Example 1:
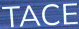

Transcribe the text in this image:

TACE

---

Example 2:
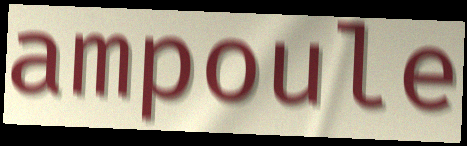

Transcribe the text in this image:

ampoule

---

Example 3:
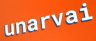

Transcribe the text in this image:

unarvai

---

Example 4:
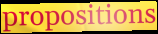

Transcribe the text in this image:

propositions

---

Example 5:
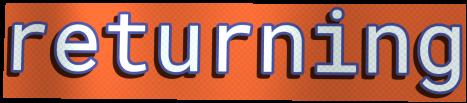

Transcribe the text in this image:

returning